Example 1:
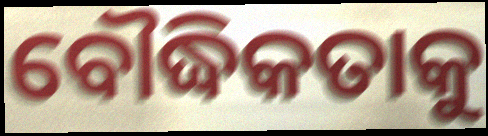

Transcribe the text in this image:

ବୌଦ୍ଧିକତାକୁ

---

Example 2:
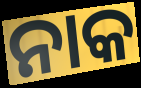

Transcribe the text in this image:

ନାକ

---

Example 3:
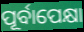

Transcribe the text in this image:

ପୂର୍ବାପେକ୍ଷା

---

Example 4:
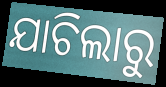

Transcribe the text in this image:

ଯାଚିଲାରୁ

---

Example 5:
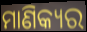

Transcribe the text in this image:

ମାଣିକ୍ୟର